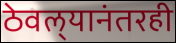
ठेवल्यानंतरही